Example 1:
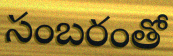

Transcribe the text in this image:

సంబరంతో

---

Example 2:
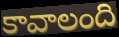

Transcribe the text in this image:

కావాలంది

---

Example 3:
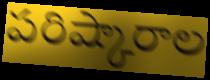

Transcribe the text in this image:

పరిష్కారాల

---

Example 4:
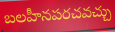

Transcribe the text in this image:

బలహీనపరచవచ్చు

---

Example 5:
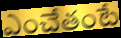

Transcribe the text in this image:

ఎంచేతంటే